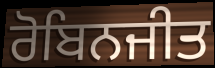
ਰੋਬਿਨਜੀਤ